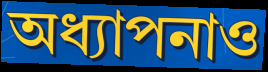
অধ্যাপনাও